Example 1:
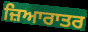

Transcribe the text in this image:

ਜ਼ਿਆਰਾਤਰ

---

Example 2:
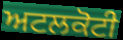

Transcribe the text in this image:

ਅਟਲਕੋਟੀ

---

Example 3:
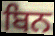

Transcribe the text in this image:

ਬਿਨ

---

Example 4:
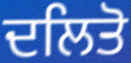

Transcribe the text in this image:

ਦਲਿਤੋ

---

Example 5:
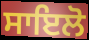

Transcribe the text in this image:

ਸਾਇਲੋ